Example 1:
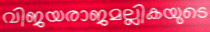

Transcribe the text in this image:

വിജയരാജമല്ലികയുടെ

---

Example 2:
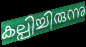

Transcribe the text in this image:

കല്പിച്ചിരുന്നു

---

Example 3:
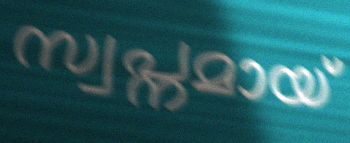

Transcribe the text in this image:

സ്വപ്നമായ്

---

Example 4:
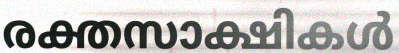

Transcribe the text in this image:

രക്തസാക്ഷികൾ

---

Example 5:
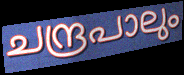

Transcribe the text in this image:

ചന്ദ്രപാലും